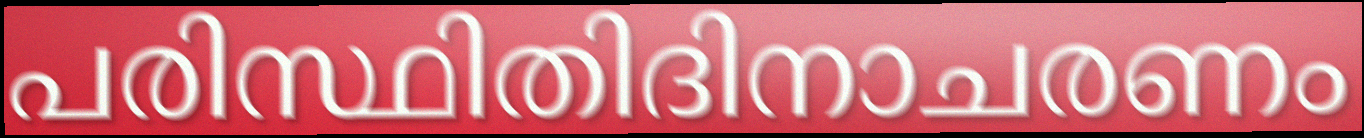
പരിസ്ഥിതിദിനാചരണം